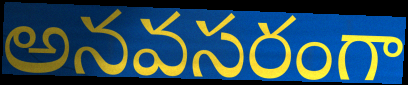
అనవసరంగా